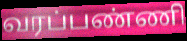
வரப்பண்ணி